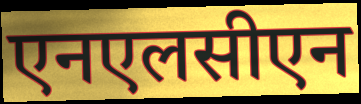
एनएलसीएन